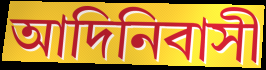
আদিনিবাসী